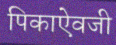
पिकाऐवजी